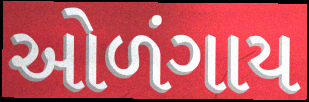
ઓળંગાય